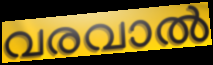
വരവാൽ